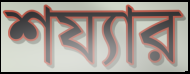
শয্যার